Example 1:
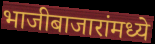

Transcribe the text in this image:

भाजीबाजारांमध्ये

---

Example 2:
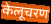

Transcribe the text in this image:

केलूचरण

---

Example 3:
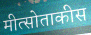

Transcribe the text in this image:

मीत्सोताकीस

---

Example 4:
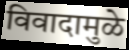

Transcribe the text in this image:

विवादामुळे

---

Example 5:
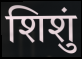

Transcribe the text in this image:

शिशुं